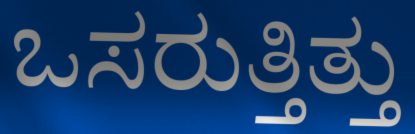
ಒಸರುತ್ತಿತ್ತು